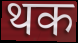
थक